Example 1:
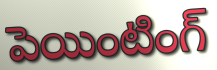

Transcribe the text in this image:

పెయింటింగ్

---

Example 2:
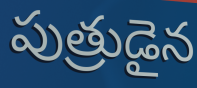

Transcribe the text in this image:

పుత్రుడైన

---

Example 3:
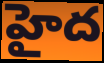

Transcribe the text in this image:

హైద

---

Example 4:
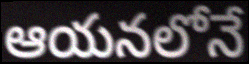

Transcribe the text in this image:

ఆయనలోనే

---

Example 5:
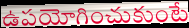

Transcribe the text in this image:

ఉపయోగించుకుంటే